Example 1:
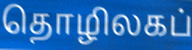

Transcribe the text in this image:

தொழிலகப்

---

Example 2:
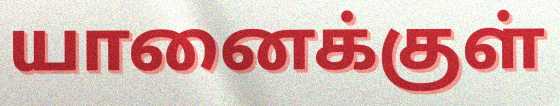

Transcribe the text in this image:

யானைக்குள்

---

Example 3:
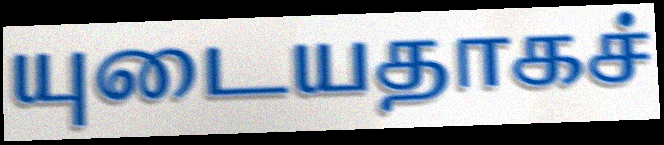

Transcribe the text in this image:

யுடையதாகச்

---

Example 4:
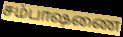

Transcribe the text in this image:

சம்பாஷணை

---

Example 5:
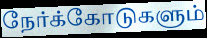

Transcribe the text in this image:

நேர்க்கோடுகளும்